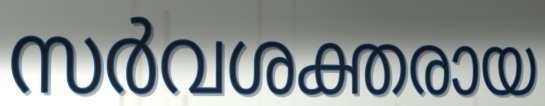
സർവശക്തരായ